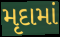
મૃદામાં